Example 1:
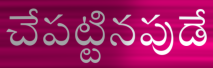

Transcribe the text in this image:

చేపట్టినపుడే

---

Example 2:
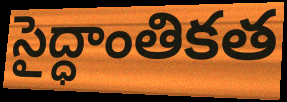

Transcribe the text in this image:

సైద్ధాంతికత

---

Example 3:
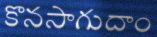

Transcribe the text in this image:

కొనసాగుదాం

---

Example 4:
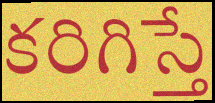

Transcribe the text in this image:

కరిగిస్తే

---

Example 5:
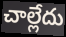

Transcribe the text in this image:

చాల్లేదు